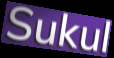
Sukul